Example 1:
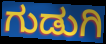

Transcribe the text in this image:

ಗುಡುಗಿ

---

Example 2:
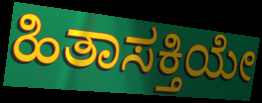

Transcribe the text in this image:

ಹಿತಾಸಕ್ತಿಯೇ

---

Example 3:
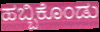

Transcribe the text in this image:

ಹಬ್ಬಿಕೊಂಡು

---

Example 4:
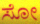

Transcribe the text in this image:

ಸೋ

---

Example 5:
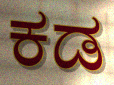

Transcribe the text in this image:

ಕಡ